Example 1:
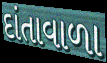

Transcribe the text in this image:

દાંતાવાળા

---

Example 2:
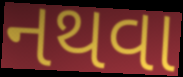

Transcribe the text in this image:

નથવા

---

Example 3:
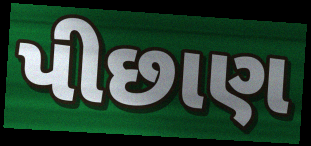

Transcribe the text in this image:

પીછાણ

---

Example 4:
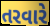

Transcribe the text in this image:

તરવારે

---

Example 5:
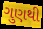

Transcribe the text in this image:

ગુણથી